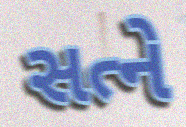
સત્ને